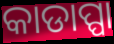
କାଡାପ୍ପା